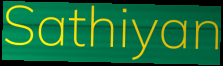
Sathiyan